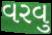
વરવુ